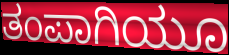
ತಂಪಾಗಿಯೂ